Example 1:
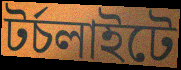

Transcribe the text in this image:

টর্চলাইটে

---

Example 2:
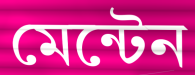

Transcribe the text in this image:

মেন্টেন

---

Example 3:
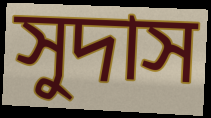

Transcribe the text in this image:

সুদাস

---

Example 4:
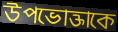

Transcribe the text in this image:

উপভোক্তাকে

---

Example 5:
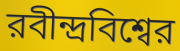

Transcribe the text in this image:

রবীন্দ্রবিশ্বের